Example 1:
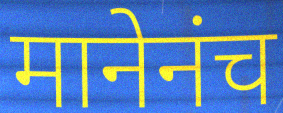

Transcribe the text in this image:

मानेनंच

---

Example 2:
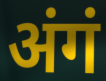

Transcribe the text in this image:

अंगं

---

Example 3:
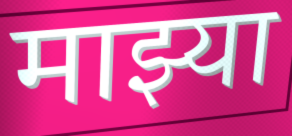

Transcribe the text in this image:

माझ्या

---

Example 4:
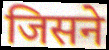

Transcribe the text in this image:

जिसने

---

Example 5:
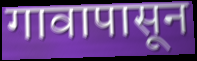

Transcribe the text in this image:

गावापासून